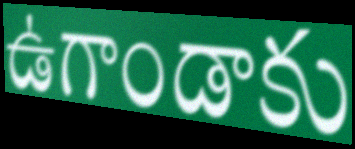
ఉగాండాకు